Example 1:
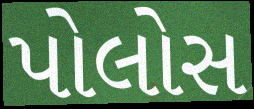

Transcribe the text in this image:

પોલોસ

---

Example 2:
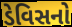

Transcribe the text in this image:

ડેવિસનો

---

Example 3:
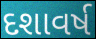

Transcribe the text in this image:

દશાવર્ષ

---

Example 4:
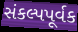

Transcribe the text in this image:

સંકલ્પપૂર્વક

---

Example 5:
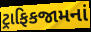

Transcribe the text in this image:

ટ્રાફિકજામનાં